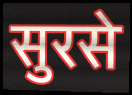
सुरसे